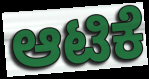
ಆಟಿಕೆ